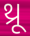
થ્રૂ